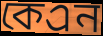
কেএন